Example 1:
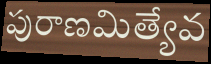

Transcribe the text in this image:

పురాణమిత్యేవ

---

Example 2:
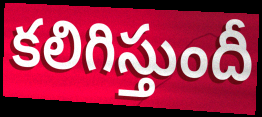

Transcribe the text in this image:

కలిగిస్తుందీ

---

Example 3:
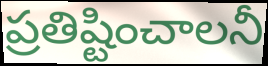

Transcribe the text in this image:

ప్రతిష్టించాలనీ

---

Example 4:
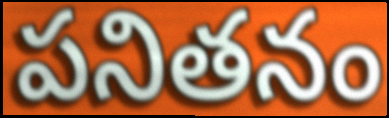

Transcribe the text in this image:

పనితనం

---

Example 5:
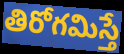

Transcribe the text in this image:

తిరోగమిస్తే